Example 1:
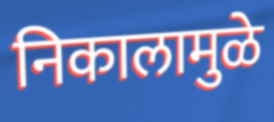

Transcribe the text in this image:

निकालामुळे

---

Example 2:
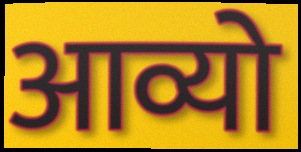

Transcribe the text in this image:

आव्यो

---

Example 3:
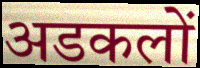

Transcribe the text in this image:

अडकलों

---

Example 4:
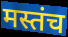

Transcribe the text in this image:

मस्तंच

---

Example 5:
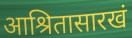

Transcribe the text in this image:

आश्रितासारखं